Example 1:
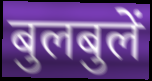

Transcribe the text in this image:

बुलबुलें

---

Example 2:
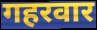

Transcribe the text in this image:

गहरवार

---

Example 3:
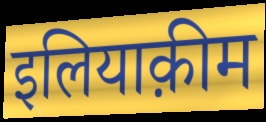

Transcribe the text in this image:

इलियाक़ीम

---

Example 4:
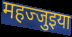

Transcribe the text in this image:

महज्जुइया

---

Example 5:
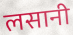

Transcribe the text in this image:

लसानी